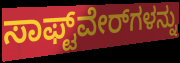
ಸಾಫ್ಟ್‌ವೇರ್‌ಗಳನ್ನು